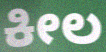
ಕೀಲ